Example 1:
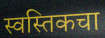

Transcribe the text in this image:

स्वस्तिकचा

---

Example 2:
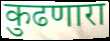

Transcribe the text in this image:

कुढणारा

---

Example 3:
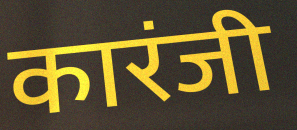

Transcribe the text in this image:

कारंजी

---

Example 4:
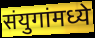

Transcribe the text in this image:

संयुगांमध्ये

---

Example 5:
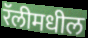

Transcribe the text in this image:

रॅलीमधील